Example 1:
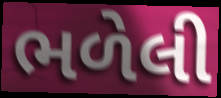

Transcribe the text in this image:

ભળેલી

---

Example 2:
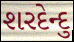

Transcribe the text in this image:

શરદેન્દુ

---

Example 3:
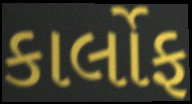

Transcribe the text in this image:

કાર્લોફ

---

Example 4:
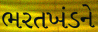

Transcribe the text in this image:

ભરતખંડને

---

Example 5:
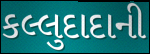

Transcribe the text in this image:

કલ્લુદાદાની